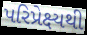
પરિપ્રેક્ષ્યથી